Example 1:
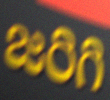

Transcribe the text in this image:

జరిగి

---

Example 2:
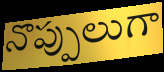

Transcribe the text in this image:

నొప్పులుగా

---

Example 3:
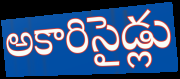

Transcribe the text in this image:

అకారిసైడ్లు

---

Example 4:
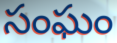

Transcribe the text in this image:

సంఘం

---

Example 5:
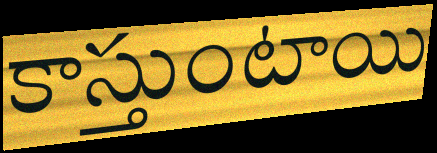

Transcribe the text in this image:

కాస్తుంటాయి